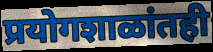
प्रयोगशाळांतही